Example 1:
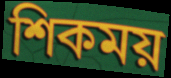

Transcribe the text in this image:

শিকময়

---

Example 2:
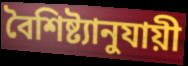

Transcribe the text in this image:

বৈশিষ্ট্যানুযায়ী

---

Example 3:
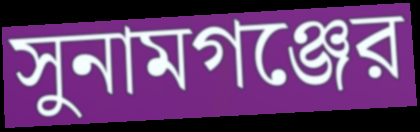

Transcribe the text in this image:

সুনামগঞ্জের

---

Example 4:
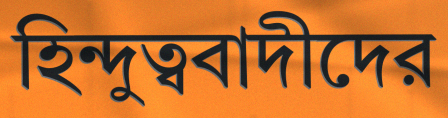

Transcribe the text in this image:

হিন্দুত্ববাদীদের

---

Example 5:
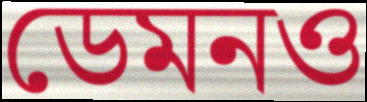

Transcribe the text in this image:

ডেমনও